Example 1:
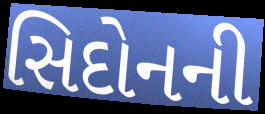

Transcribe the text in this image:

સિદોનની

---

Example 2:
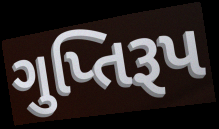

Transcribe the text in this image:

ગુપ્તિરૂપ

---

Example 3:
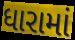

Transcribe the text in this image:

ધારામાં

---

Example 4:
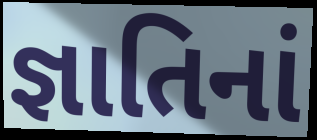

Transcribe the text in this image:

જ્ઞાતિનાં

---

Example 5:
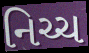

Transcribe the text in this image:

નિચ્ચ